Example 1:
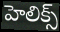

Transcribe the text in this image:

హెలిక్స్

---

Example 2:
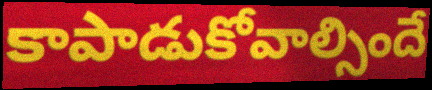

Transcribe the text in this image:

కాపాడుకోవాల్సిందే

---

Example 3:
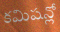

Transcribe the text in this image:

కమిషన్లో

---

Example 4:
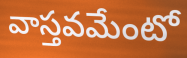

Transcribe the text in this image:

వాస్తవమేంటో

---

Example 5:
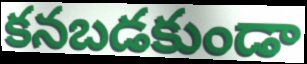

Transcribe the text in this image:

కనబడకుండా